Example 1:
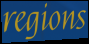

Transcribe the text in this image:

regions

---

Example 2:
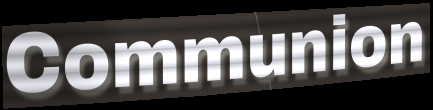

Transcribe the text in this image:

Communion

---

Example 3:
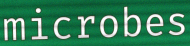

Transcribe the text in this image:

microbes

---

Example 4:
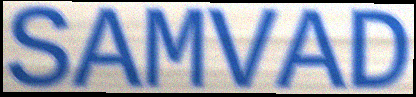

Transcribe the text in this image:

SAMVAD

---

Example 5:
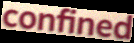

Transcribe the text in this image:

confined